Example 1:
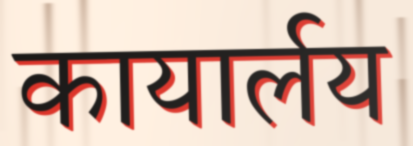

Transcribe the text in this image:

कायार्लय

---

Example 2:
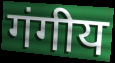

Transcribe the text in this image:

गंगीय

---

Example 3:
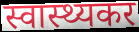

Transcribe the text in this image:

स्वास्थ्यकर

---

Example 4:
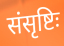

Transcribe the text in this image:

संसृष्टिः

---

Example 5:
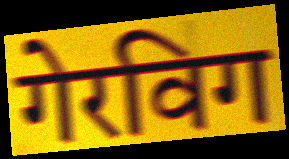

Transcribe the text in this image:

गेरविग